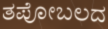
ತಪೋಬಲದ